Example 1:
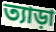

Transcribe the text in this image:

ত্যাড়া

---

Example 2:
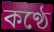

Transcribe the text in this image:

কণ্ঠে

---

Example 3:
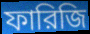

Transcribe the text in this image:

ফারিজি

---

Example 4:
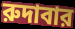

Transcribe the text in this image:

রুদাবার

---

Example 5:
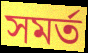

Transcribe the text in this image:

সমর্ত